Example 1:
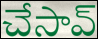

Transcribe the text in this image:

చేసావ్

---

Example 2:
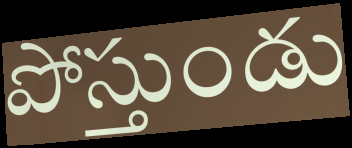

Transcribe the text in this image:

పోస్తుండు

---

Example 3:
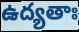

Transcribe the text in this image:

ఉద్యతాః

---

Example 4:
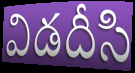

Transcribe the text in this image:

విడదీసి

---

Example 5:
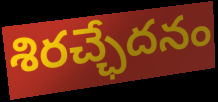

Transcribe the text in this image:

శిరచ్ఛేదనం